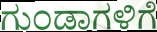
ಗುಂಡಾಗಳಿಗೆ